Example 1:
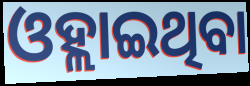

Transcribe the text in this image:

ଓହ୍ଲାଇଥିବା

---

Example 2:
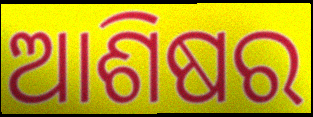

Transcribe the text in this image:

ଆଶିଷର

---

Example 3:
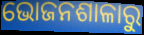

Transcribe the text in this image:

ଭୋଜନଶାଳାରୁ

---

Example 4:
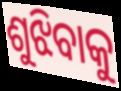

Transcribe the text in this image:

ଶୁଝିବାକୁ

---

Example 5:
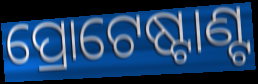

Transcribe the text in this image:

ପ୍ରୋଟେଷ୍ଟାଣ୍ଟ